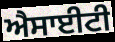
ਐਸਾਈਟੀ